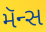
મૅન્સ